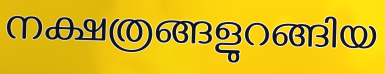
നക്ഷത്രങ്ങളുറങ്ങിയ